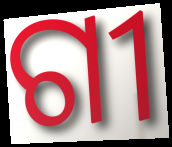
ଗୀ